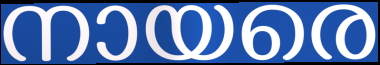
നായരെ